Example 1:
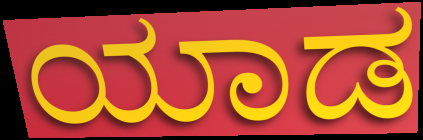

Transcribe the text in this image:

ಯಾಡ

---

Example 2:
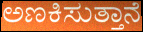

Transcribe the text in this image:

ಅಣಕಿಸುತ್ತಾನೆ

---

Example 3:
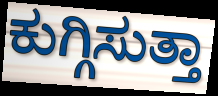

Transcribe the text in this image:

ಕುಗ್ಗಿಸುತ್ತಾ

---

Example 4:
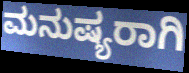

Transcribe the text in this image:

ಮನುಷ್ಯರಾಗಿ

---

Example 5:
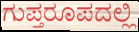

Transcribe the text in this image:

ಗುಪ್ತರೂಪದಲ್ಲಿ